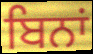
ਬਿਨਾਂ